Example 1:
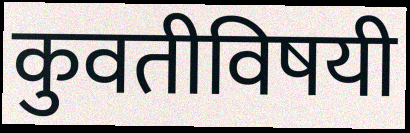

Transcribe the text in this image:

कुवतीविषयी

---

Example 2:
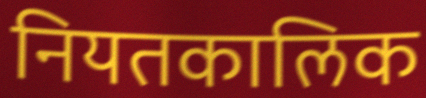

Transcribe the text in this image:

नियतकालिक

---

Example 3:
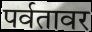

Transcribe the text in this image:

पर्वतावर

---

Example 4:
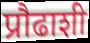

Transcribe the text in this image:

प्रौढाशी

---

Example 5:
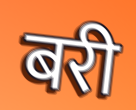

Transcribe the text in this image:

बरी